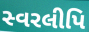
સ્વરલીપિ